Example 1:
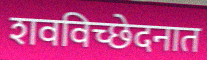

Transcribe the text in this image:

शवविच्छेदनात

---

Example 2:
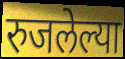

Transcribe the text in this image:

रुजलेल्या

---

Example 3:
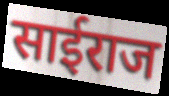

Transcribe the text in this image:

साईराज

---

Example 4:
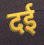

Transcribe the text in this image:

दई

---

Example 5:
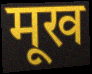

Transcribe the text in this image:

मूख